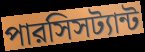
পারসিসট্যান্ট